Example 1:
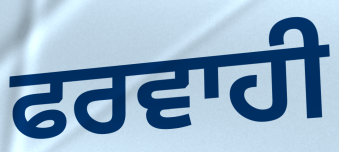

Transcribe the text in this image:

ਫਰਵਾਹੀ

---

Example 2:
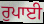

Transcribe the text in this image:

ਰੁਪਾਈ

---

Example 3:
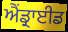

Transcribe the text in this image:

ਐਂਡ੍ਰਾਈਡ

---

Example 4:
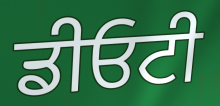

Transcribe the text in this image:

ਡੀਓਟੀ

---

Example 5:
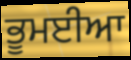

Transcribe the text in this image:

ਭੂਮਈਆ